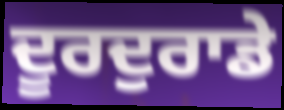
ਦੂਰਦੁਰਾਡੇ